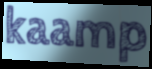
kaamp